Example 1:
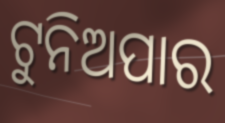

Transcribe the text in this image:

ଟୁନିଅପାର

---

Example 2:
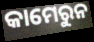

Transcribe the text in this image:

କାମେରୁନ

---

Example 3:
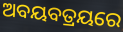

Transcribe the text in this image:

ଅବୟବତ୍ରୟରେ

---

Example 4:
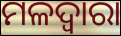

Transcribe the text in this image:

ମଳଦ୍ଵାରା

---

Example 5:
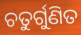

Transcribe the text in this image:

ଚତୁର୍ଗୁଣିତ